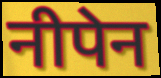
नीपेन